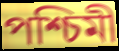
পশ্চিমী